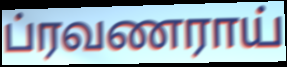
ப்ரவணராய்